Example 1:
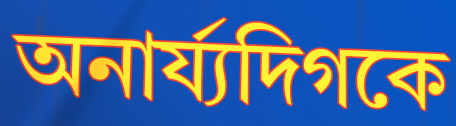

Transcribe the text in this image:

অনার্য্যদিগকে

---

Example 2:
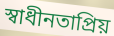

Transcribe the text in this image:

স্বাধীনতাপ্রিয়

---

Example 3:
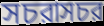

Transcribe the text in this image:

সচরাসচর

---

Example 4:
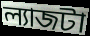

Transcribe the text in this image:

ল্যাজটা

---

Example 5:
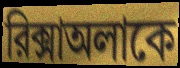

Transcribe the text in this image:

রিক্সাঅলাকে